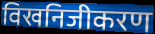
विखनिजीकरण